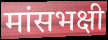
मांसभक्षी